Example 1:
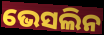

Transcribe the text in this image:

ଭେସଲିନ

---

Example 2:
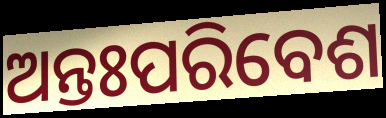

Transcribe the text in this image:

ଅନ୍ତଃପରିବେଶ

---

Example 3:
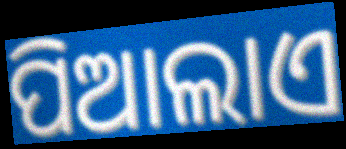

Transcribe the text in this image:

ପିଆଲାଏ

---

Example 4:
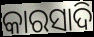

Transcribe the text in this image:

କାରସାଦି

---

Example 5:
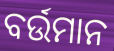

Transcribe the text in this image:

ବର୍ଉମାନ